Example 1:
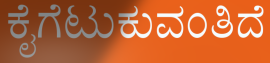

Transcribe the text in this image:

ಕೈಗೆಟುಕುವಂತಿದೆ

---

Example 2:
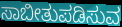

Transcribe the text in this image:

ಸಾಬೀತುಪಡಿಸುವ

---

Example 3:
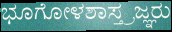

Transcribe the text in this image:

ಭೂಗೋಳಶಾಸ್ತ್ರಜ್ಞರು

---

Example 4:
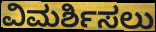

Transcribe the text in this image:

ವಿಮರ್ಶಿಸಲು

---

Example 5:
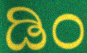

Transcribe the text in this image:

ಡಿಂ